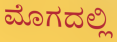
ಮೊಗದಲ್ಲಿ